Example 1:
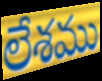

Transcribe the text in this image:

లేశము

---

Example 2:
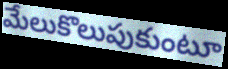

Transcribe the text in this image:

మేలుకొలుపుకుంటూ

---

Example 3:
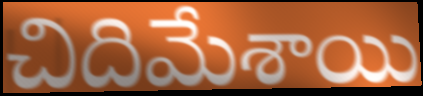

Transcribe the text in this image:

చిదిమేశాయి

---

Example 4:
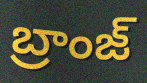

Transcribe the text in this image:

బ్రాంజ్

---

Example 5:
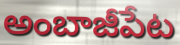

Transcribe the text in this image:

అంబాజీపేట